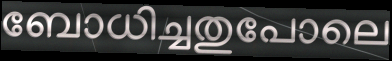
ബോധിച്ചതുപോലെ